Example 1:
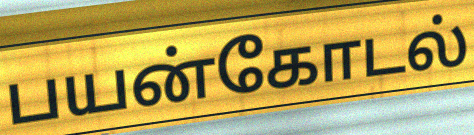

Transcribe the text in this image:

பயன்கோடல்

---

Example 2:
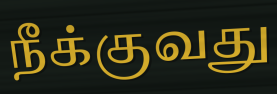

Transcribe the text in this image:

நீக்குவது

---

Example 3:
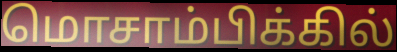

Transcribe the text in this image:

மொசாம்பிக்கில்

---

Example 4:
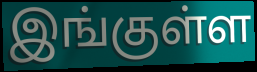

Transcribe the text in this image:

இங்குள்ள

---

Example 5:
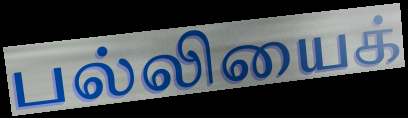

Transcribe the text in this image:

பல்லியைக்